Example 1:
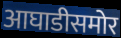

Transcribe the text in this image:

आघाडीसमोर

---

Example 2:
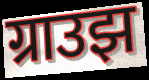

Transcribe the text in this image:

ग्राउझ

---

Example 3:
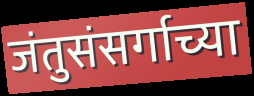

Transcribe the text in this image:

जंतुसंसर्गाच्या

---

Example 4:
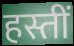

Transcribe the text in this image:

हस्तीं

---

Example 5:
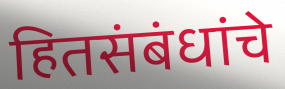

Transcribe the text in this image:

हितसंबंधांचे